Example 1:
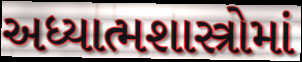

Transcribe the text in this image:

અધ્યાત્મશાસ્ત્રોમાં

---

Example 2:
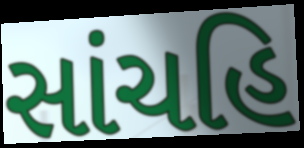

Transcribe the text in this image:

સાંચહિ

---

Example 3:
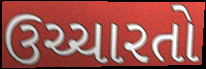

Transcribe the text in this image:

ઉચ્ચારતો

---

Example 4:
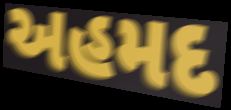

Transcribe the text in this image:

અહમદ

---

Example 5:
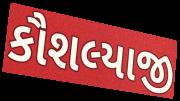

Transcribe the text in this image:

કૌશલ્યાજી